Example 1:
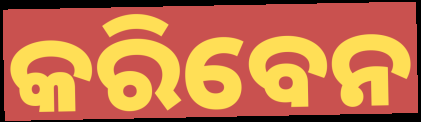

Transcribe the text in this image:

କରିବେନ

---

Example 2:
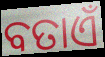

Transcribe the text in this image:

ବତାଏଁ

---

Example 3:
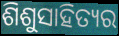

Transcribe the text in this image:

ଶିଶୁସାହିତ୍ୟର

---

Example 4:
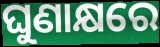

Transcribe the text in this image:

ଘୁଣାକ୍ଷରେ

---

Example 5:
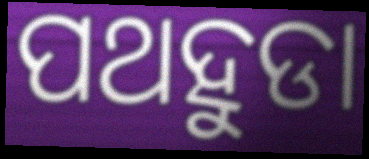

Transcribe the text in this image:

ପଥହୁଡା